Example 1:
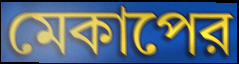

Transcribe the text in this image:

মেকাপের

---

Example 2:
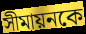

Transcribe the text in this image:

সীমায়নকে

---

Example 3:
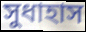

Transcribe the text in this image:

সুধাহাস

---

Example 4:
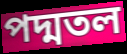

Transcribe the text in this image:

পদ্মতল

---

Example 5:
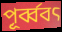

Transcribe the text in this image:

পূর্ব্ববৎ